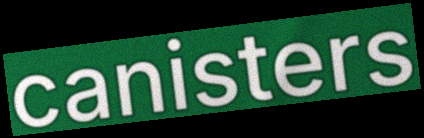
canisters